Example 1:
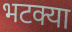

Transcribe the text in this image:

भटक्या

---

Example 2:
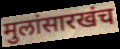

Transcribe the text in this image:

मुलांसारखंच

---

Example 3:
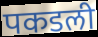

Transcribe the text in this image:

पकडली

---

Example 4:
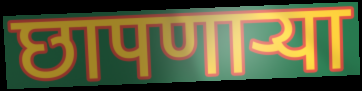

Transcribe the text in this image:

छापणाऱ्या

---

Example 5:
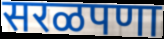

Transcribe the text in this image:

सरळपणा